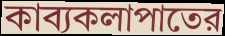
কাব্যকলাপাতের